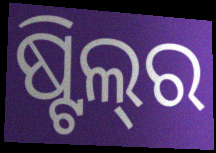
ଷ୍ଟିଲ୍‌ର